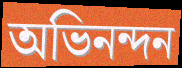
অভিনন্দন